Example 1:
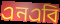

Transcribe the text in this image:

এনএবি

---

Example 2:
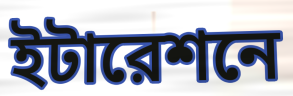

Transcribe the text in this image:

ইটারেশনে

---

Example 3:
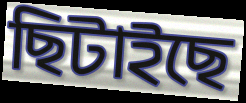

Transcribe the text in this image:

ছিটাইছে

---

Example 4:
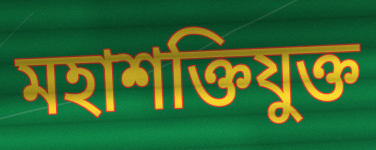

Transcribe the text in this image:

মহাশক্তিযুক্ত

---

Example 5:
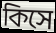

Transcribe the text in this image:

কিসে